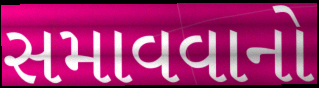
સમાવવાનો